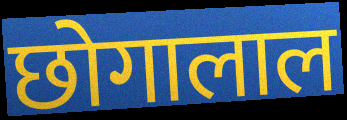
छोगालाल